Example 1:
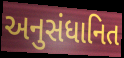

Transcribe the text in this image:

અનુસંધાનિત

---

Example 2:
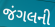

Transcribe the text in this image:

જંગલની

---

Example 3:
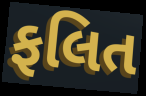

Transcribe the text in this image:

ફલિત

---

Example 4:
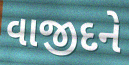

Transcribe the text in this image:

વાજીદને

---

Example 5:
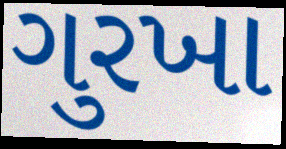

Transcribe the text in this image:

ગુરખા